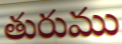
తురుము